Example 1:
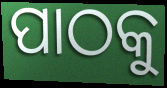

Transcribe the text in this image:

ପାଠକୁ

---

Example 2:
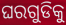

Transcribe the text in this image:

ଘରଗୁଡିକୁ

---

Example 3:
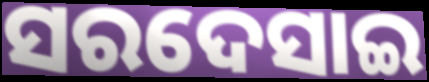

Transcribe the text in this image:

ସରଦେସାଇ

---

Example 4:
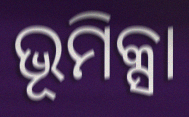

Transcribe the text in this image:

ଭୂମିକ୍ସା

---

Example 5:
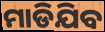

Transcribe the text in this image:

ମାଡିଯିବ